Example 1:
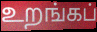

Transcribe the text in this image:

உறங்கப்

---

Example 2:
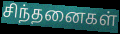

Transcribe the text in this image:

சிந்தனைகள்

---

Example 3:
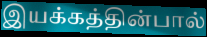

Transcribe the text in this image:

இயக்கத்தின்பால்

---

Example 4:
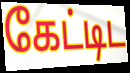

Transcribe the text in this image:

கேட்டிட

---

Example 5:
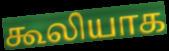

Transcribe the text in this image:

கூலியாக